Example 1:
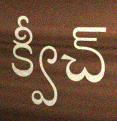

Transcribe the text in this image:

క్వీచ్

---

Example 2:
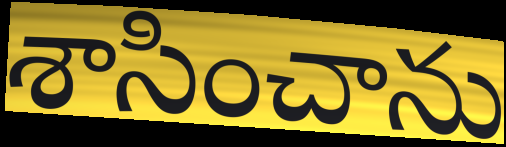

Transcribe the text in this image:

శాసించాను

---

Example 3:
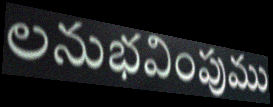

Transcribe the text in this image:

లనుభవింపుము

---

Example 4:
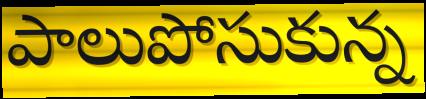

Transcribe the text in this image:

పాలుపోసుకున్న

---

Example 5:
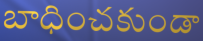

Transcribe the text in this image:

బాధించకుండా